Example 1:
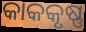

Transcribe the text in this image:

କାକକୃଷ୍ଣ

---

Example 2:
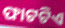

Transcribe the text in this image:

ଫାଟଟିଏ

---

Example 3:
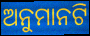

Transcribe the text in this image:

ଅନୁମାନଟି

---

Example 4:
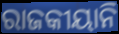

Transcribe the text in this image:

ରାଜକୀୟାନି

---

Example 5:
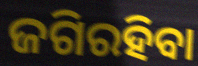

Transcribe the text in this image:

ଜଗିରହିବା